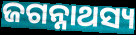
ଜଗନ୍ନାଥସ୍ୟ